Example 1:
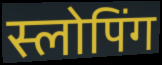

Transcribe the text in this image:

स्लोपिंग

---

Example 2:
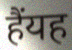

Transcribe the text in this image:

हैंयह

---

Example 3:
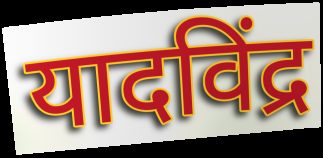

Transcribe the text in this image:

यादविंद्र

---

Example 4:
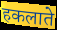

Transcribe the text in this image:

हकलाते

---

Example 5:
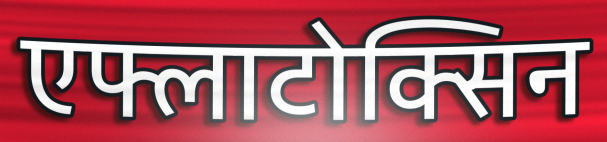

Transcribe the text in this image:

एफ्लाटोक्सिन